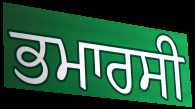
ਭਮਾਰਸੀ